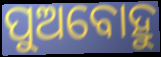
ପୁଅବୋହୁ